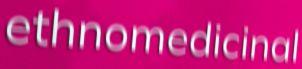
ethnomedicinal